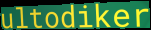
ultodiker